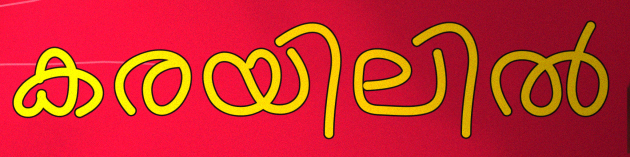
കരയിലിൽ